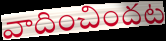
వాదించిందట